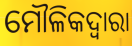
ମୌଳିକଦ୍ଵାରା